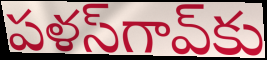
పళస్‌గావ్‌కు